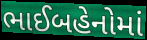
ભાઈબહેનોમાં